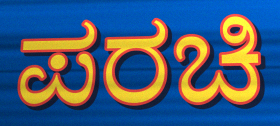
ಪರಚಿ